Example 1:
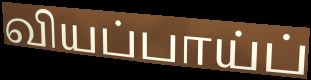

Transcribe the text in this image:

வியப்பாய்ப்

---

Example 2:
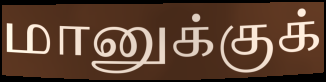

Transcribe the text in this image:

மானுக்குக்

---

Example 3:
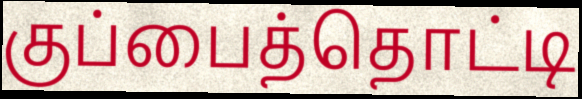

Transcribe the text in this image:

குப்பைத்தொட்டி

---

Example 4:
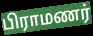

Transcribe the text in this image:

பிராமணர்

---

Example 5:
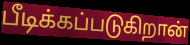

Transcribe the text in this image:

பீடிக்கப்படுகிறான்